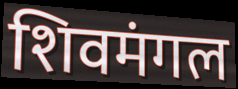
शिवमंगल